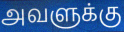
அவளுக்கு